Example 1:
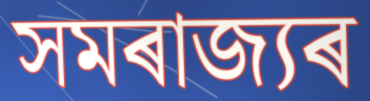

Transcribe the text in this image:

সমৰাজ্যৰ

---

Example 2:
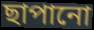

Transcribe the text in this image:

ছাপানো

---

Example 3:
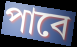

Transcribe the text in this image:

পাবে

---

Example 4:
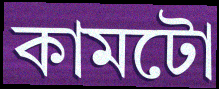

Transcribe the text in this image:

কামটো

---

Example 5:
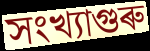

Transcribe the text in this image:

সংখ্যাগুৰু